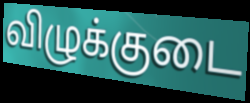
விழுக்குடை